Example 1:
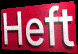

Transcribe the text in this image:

Heft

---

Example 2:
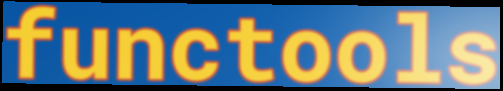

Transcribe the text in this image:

functools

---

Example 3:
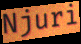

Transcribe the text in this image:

Njuri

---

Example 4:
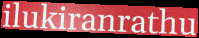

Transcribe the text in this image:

ilukiranrathu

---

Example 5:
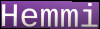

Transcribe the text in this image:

Hemmi